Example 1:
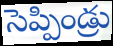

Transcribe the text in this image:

సెప్పిండ్రు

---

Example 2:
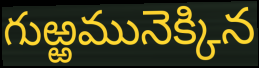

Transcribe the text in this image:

గుఱ్ఱమునెక్కిన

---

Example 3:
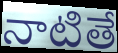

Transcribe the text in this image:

నాటితే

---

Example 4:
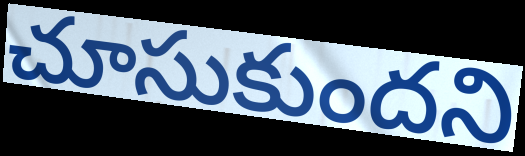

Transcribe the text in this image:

చూసుకుందని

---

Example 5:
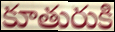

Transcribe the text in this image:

కూతురుకి